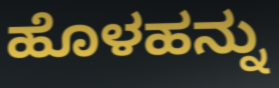
ಹೊಳಹನ್ನು